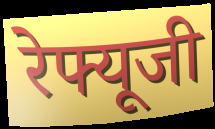
रेफ्यूजी